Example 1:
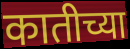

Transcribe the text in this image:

कातीच्या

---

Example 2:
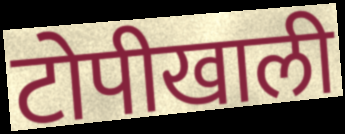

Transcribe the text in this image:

टोपीखाली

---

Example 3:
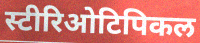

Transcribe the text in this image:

स्टीरिओटिपिकल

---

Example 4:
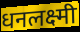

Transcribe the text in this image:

धनलक्ष्मी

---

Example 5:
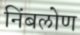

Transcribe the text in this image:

निंबलोण